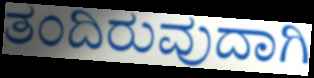
ತಂದಿರುವುದಾಗಿ